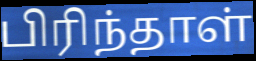
பிரிந்தாள்